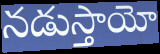
నడుస్తాయో